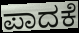
ಪಾದಕೆ